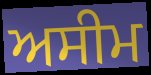
ਅਸੀਮ